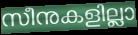
സീനുകളില്ലാ